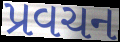
પ્રવચન